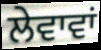
ਲੇਵਾਵਾਂ